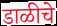
डाळीचे